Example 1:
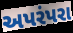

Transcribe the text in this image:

અપરંપરા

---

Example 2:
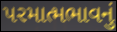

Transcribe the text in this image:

પરમાત્મભાવનું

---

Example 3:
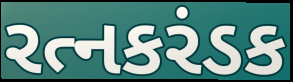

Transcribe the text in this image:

રત્નકરંડક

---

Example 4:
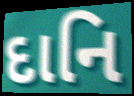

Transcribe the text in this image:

દાનિ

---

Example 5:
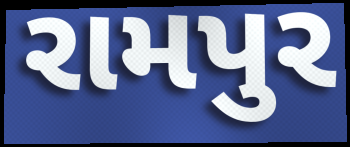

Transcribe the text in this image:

રામપુર